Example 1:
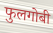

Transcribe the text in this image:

फुलगोबी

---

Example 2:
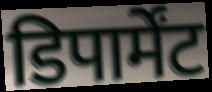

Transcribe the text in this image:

डिपार्मेंट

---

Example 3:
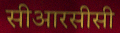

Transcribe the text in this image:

सीआरसीसी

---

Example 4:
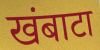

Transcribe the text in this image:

खंबाटा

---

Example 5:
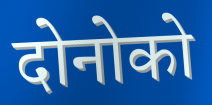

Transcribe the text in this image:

दोनोको